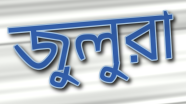
জুলুরা